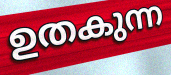
ഉതകുന്ന